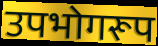
उपभोगरूप